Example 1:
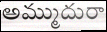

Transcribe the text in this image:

అమ్ముదురా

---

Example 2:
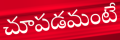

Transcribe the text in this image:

చూపడమంటే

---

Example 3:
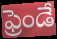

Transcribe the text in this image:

ఫ్రెండే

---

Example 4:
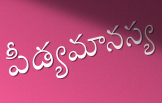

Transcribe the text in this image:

పీడ్యమానస్య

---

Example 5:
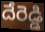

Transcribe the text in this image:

దేరెడ్డి